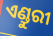
ଏଣ୍ଡୁରୀ